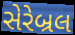
સેરેબ્રલ